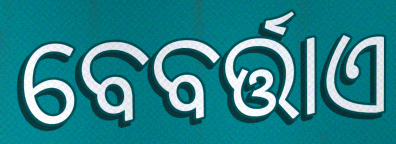
ବେବର୍ତ୍ତାଏ